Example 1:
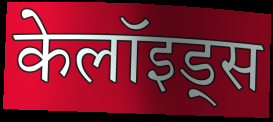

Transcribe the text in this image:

केलॉइड्स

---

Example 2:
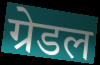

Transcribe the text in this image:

ग्रेडल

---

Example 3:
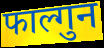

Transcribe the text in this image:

फाल्गुन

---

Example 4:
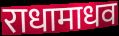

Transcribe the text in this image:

राधामाधव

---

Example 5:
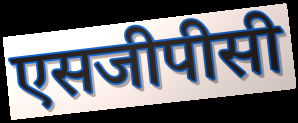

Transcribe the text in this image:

एसजीपीसी